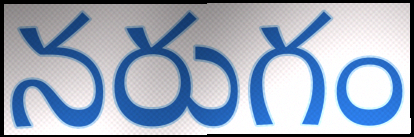
నరుగం